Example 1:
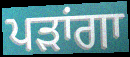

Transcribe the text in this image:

ਪੜਾਂਗਾ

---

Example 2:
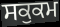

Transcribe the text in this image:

ਸਕੁਕਮ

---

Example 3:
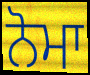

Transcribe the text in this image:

ਨੋਮਾ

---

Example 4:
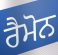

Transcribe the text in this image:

ਰੈਮੋਨ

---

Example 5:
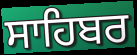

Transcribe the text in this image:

ਸਾਹਿਬਰ